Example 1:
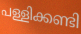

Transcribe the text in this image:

പള്ളിക്കണ്ടി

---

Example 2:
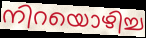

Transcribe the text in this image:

നിറയൊഴിച്ച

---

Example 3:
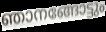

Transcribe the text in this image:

ഞാനങ്ങോട്ടും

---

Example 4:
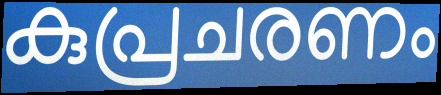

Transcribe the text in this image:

കുപ്രചരണം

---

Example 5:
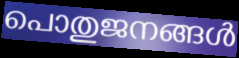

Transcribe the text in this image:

പൊതുജനങ്ങൾ